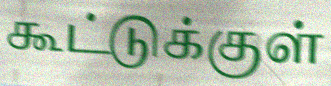
கூட்டுக்குள்